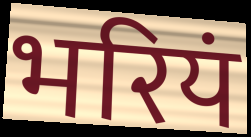
भरियं